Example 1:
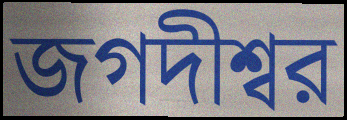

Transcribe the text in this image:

জগদীশ্বর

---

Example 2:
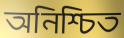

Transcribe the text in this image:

অনিশ্চিত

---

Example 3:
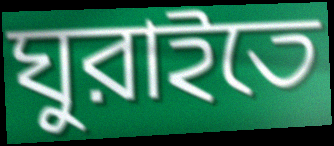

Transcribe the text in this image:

ঘুরাইতে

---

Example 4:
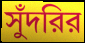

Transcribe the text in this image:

সুঁদরির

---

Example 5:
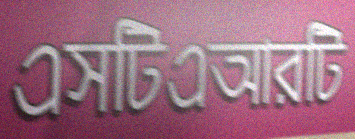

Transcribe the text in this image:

এসটিএআরটি